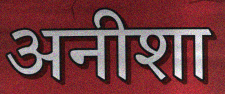
अनीशा